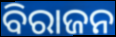
ବିରାଜନ